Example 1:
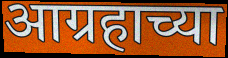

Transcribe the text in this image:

आग्रहाच्या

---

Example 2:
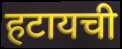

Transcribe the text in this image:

हटायची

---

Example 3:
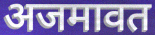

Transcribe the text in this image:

अजमावत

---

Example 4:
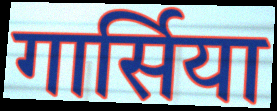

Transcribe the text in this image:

गार्सिया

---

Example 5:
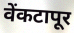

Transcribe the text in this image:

वेंकटापूर